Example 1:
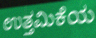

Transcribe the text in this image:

ಉತ್ತಮಿಕೆಯ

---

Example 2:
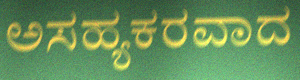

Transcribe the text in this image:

ಅಸಹ್ಯಕರವಾದ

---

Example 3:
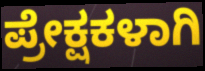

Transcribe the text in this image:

ಪ್ರೇಕ್ಷಕಳಾಗಿ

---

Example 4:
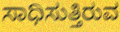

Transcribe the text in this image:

ಸಾಧಿಸುತ್ತಿರುವ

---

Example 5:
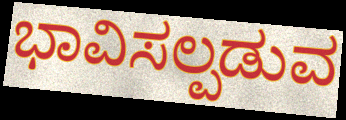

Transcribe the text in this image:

ಭಾವಿಸಲ್ಪಡುವ